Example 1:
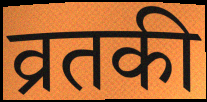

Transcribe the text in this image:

व्रतकी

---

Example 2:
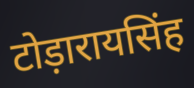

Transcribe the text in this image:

टोड़ारायसिंह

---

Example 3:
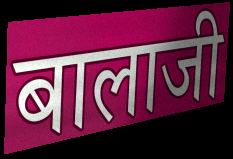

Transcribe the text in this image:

बालाजी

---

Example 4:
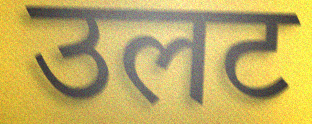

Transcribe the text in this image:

उलट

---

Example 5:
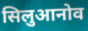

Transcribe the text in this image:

सिलुआनोव